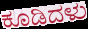
ಕೂಡಿದಳು